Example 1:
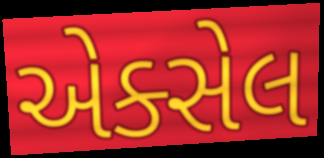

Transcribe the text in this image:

એક્સેલ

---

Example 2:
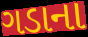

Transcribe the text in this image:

ગડાના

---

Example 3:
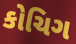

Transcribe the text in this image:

કોચિગ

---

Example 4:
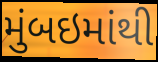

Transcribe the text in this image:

મુંબઇમાંથી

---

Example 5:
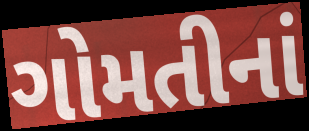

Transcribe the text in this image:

ગોમતીનાં